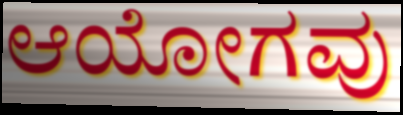
ಆಯೋಗವು